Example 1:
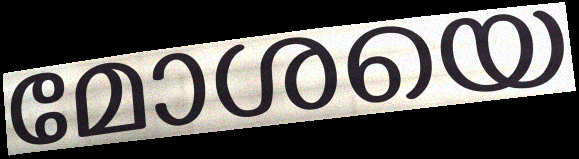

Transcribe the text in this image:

മോശയെ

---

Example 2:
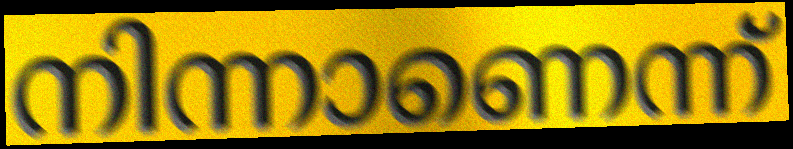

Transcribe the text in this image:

നിന്നാണെന്ന്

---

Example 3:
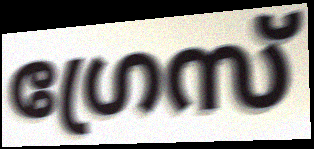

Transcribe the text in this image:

ഗ്രേസ്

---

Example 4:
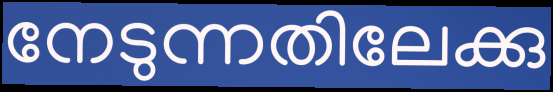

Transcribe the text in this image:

നേടുന്നതിലേക്കു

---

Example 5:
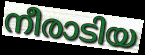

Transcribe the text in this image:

നീരാടിയ